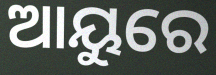
ଆୟୁରେ